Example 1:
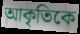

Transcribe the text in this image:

আকৃতিকে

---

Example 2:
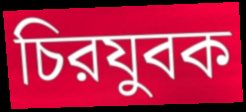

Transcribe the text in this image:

চিরযুবক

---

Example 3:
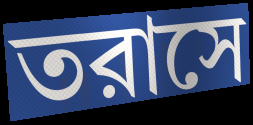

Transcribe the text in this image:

তরাসে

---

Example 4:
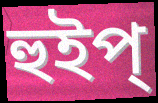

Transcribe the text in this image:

হুইপ্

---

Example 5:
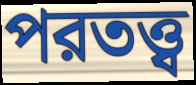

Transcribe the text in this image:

পরতত্ত্ব